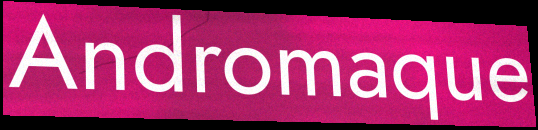
Andromaque